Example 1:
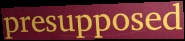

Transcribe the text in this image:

presupposed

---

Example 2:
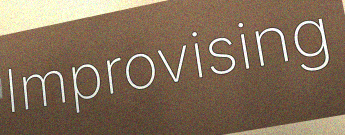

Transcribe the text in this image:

Improvising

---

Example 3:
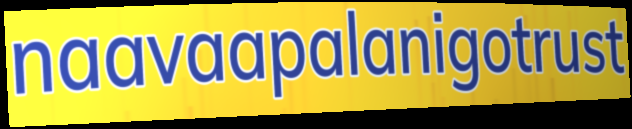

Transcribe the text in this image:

naavaapalanigotrust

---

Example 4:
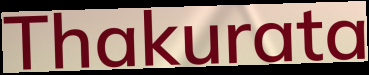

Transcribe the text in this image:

Thakurata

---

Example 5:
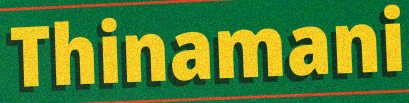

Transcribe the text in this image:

Thinamani